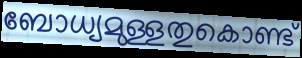
ബോധ്യമുള്ളതുകൊണ്ട്